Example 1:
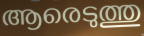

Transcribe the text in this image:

ആരെടുത്തു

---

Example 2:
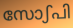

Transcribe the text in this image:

സോഽപി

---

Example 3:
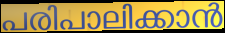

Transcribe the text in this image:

പരിപാലിക്കാൻ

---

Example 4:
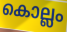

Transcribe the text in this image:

കൊല്ലം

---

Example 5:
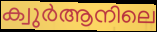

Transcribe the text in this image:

ക്വുർആനിലെ